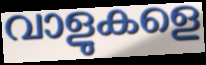
വാളുകളെ